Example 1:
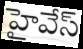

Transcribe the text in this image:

హైవేస్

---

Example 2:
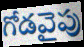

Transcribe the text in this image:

గోడవైపు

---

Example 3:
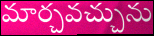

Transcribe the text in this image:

మార్చవచ్చును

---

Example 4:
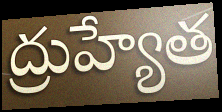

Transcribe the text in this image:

ద్రుహ్యేత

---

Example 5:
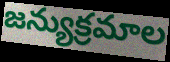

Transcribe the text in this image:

జన్యుక్రమాల